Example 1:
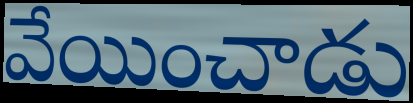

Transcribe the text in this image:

వేయించాడు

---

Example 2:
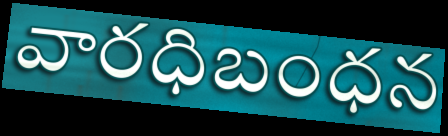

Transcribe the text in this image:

వారధిబంధన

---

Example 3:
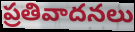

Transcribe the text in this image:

ప్రతివాదనలు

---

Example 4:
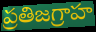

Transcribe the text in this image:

ప్రతిజగ్రాహ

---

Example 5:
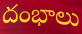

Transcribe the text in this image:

దంభాలు